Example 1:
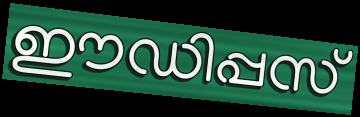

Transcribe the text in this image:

ഈഡിപ്പസ്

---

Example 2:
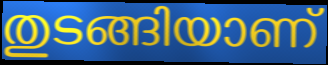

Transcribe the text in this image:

തുടങ്ങിയാണ്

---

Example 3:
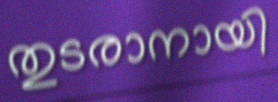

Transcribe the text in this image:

തുടരാനായി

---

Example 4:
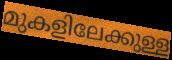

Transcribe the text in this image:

മുകളിലേക്കുള്ള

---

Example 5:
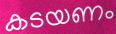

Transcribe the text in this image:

കടയണം